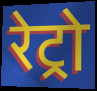
रेट्रो